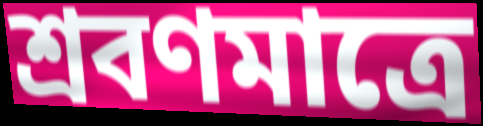
শ্রবণমাত্রে